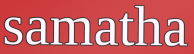
samatha